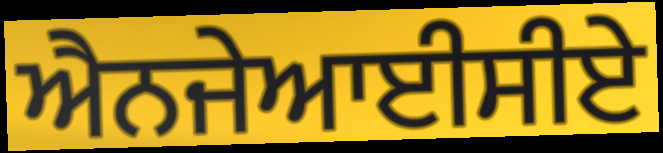
ਐਨਜੇਆਈਸੀਏ